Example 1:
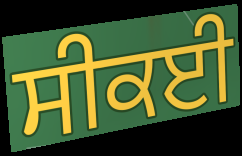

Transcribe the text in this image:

ਸੀਕਈ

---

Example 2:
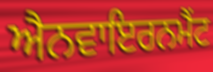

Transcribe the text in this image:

ਐਨਵਾਇਰਨਮੈਂਟ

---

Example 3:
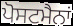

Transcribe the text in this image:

ਪੋਸਟਮੈਨਾਂ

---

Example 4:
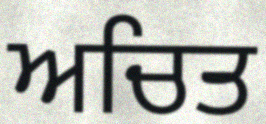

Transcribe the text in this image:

ਅਚਿਤ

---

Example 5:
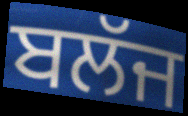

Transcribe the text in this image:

ਬਲੱਜ